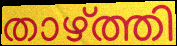
താഴ്ത്തി